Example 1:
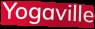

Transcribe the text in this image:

Yogaville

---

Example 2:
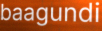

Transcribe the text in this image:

baagundi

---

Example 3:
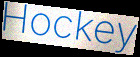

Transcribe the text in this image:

Hockey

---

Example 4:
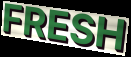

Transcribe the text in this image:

FRESH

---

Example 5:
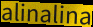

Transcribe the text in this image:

alinalina